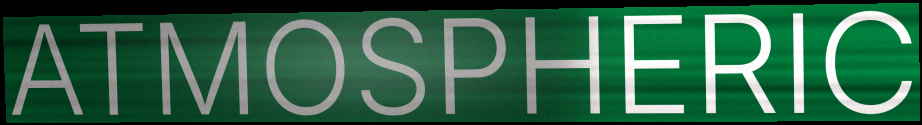
ATMOSPHERIC